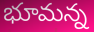
భూమన్న